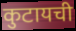
कुटायची